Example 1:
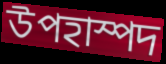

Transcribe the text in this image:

উপহাস্পদ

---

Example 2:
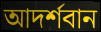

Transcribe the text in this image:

আদর্শবান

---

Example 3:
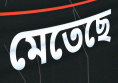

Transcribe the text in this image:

মেতেছে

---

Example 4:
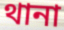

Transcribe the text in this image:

থানা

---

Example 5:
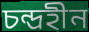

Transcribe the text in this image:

চন্দ্রহীন